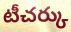
టీచర్కు